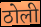
ठोली